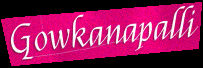
Gowkanapalli